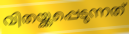
വിതയ്ക്കപ്പെടുന്നത്